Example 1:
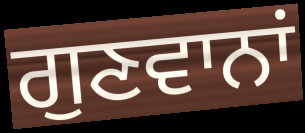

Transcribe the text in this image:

ਗੁਣਵਾਨਾਂ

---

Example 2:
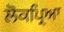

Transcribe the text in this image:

ਲੋਕਪ੍ਰਿਆ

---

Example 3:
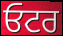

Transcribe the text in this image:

ਓਟਰ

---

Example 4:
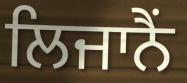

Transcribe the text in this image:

ਲਿਜਾਨੈਂ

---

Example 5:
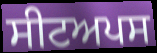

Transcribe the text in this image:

ਸੀਟਅਪਸ